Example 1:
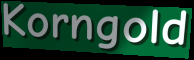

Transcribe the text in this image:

Korngold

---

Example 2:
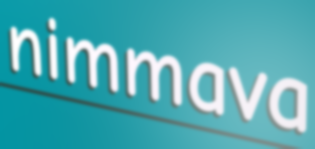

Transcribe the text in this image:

nimmava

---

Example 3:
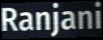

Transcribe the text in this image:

Ranjani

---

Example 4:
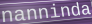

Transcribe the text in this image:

nanninda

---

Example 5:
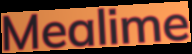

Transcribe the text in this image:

Mealime